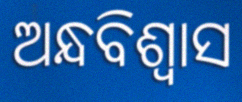
ଅନ୍ଧବିଶ୍ବାସ